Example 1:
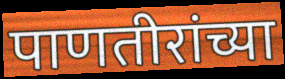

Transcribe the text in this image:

पाणतीरांच्या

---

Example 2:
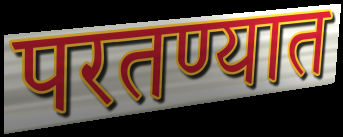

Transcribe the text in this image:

परतण्यात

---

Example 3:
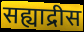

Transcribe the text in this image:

सह्याद्रीस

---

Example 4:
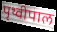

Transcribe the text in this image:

पृथ्वीपाल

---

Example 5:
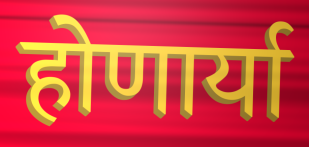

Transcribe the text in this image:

होणार्या